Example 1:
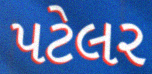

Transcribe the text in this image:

પટેલર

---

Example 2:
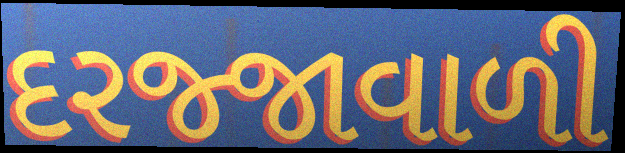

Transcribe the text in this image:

દરજ્જાવાળી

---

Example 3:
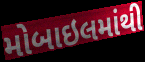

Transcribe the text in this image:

મોબાઇલમાંથી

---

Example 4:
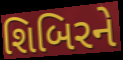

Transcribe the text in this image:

શિબિરને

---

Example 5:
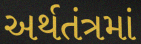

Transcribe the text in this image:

અર્થતંત્રમાં